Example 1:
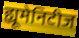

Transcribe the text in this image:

ह्यूमेनिटीज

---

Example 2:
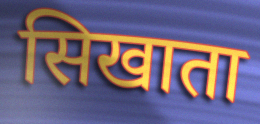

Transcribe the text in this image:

सिखाता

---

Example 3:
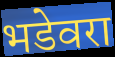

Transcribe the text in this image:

भडेवरा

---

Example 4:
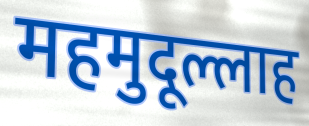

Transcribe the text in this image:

महमुदूल्लाह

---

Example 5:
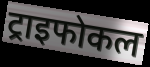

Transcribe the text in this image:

ट्राइफोकल